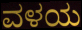
ವಳಯ